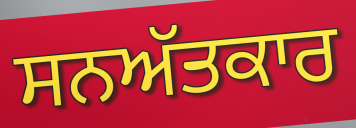
ਸਨਅੱਤਕਾਰ